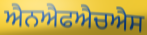
ਐਨਐਫਐਚਐਸ